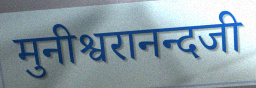
मुनीश्वरानन्दजी